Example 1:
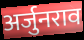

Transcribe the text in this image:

अर्जुनराव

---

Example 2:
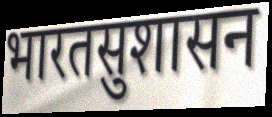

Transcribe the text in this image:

भारतसुशासन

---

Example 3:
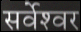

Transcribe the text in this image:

सर्वेश्‍वर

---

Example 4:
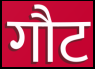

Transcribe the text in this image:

गौट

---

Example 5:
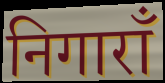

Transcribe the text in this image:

निगाराँ